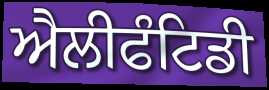
ਐਲੀਫੰਟਿਡੀ